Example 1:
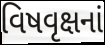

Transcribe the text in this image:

વિષવૃક્ષનાં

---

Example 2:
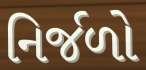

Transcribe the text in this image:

નિર્જળો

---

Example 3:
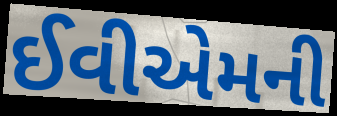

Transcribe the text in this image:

ઈવીએમની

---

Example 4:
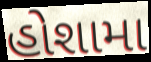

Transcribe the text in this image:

હોશામા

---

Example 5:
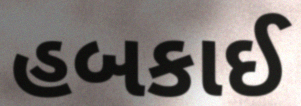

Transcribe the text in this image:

હબકાઈ